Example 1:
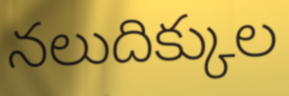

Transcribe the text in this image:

నలుదిక్కుల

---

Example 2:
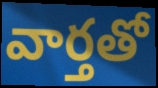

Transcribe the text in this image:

వార్తతో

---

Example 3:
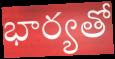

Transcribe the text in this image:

భార్యతో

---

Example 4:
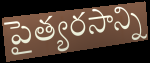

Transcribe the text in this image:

పైత్యరసాన్ని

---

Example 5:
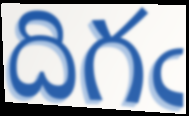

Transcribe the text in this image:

దిగఁ